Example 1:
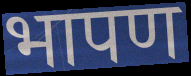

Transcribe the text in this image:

भापण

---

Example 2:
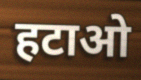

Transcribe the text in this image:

हटाओ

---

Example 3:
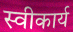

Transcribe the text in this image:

स्‍वीकार्य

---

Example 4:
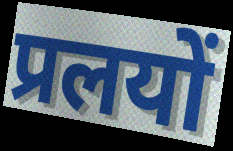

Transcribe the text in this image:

प्रलयों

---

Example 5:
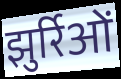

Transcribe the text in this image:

झुर्रिओं